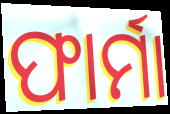
ଫାର୍ମା